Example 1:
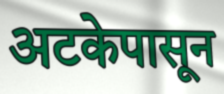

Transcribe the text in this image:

अटकेपासून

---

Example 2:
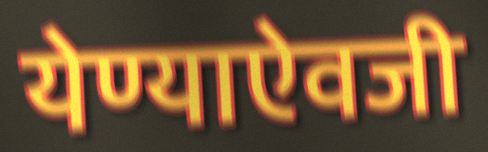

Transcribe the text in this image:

येण्याऐवजी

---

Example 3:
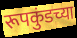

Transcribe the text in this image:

रूपकुंडच्या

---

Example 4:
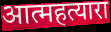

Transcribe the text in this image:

आत्महत्यारा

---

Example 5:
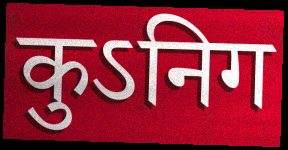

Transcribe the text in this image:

कुऽनिग